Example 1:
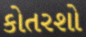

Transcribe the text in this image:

કોતરશો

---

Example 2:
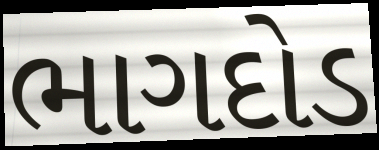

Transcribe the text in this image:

ભાગદોડ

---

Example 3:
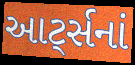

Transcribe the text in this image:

આર્ટ્સનાં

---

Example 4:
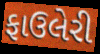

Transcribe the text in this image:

ફાઉલેરી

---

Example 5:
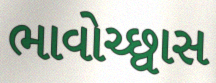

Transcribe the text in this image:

ભાવોચ્છ્વાસ